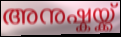
അനുഷ്കയ്ക്ക്